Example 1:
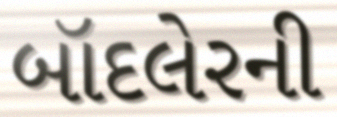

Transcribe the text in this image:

બૉદલેરની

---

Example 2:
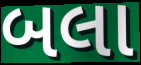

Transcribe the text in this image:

બલા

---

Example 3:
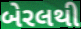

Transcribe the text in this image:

બેરલથી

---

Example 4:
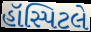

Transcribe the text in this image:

હૉસ્પિટલે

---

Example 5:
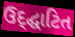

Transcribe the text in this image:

ઉદ્દ્ઘાટિત